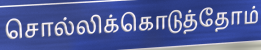
சொல்லிக்கொடுத்தோம்